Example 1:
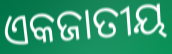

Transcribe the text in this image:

ଏକଜାତୀୟ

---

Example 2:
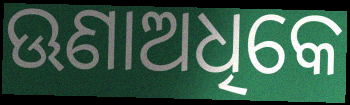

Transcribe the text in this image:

ଊଣାଅଧିକେ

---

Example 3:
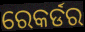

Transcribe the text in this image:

ରେକର୍ଡର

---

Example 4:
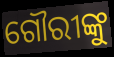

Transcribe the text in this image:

ଗୌରୀଙ୍କୁ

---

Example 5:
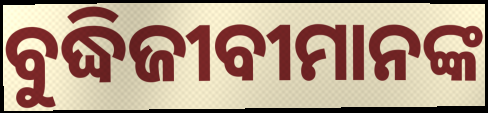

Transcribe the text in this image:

ବୁଦ୍ଧିଜୀବୀମାନଙ୍କ